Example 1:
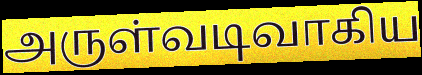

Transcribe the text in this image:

அருள்வடிவாகிய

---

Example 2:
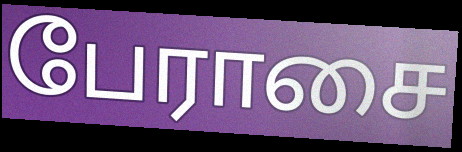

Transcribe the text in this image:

பேராசை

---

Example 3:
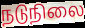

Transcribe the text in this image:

நடுநிலை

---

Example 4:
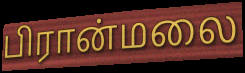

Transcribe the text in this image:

பிரான்மலை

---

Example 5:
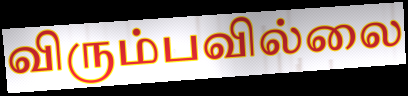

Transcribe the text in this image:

விரும்பவில்லை